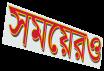
সময়েরও